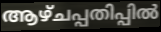
ആഴ്ചപ്പതിപ്പിൽ